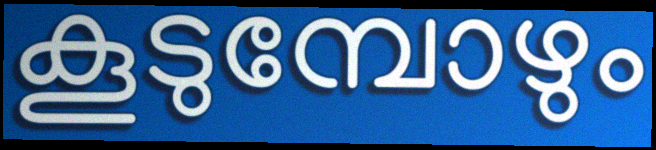
കൂടുമ്പോഴും